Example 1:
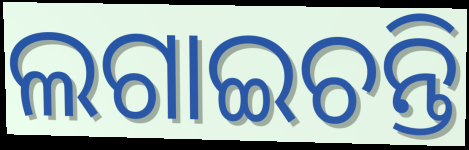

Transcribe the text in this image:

ଲଗାଇଚନ୍ତି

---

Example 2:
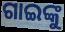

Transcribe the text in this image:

ଗାଇଙ୍କୁ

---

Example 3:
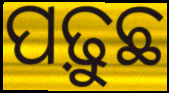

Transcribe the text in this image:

ପଢ଼ୁଛ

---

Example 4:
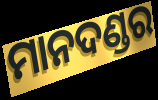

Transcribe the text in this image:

ମାନଦଣ୍ଡର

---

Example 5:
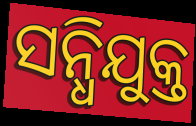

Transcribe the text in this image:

ସନ୍ଧିଯୁକ୍ତ